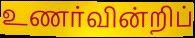
உணர்வின்றிப்